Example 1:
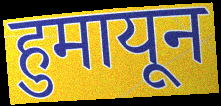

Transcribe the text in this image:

हुमायून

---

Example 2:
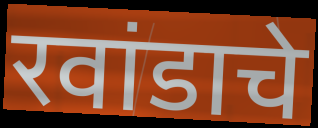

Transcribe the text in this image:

रवांडाचे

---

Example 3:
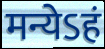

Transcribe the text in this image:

मन्येऽहं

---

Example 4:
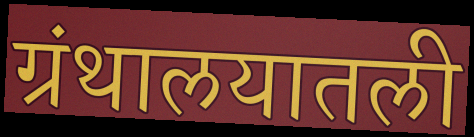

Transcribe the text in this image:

ग्रंथालयातली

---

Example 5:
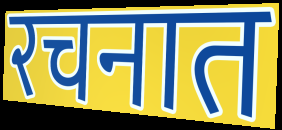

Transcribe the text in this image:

रचनात